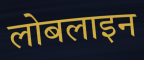
लोबलाइन